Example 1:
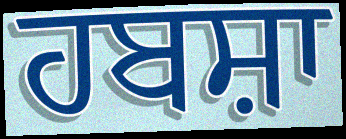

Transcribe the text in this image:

ਹਬਸ਼ਾ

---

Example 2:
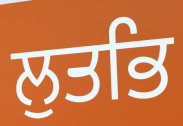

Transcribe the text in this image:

ਲੁਤਭਿ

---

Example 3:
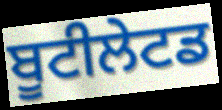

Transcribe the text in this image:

ਬੂਟੀਲੇਟਡ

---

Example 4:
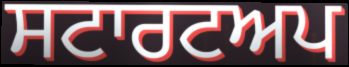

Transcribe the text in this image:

ਸਟਾਰਟਅਪ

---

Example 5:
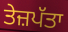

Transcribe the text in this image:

ਤੇਜ਼ਪੱਤਾ